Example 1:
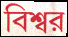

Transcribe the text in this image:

বিশ্বর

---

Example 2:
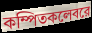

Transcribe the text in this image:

কম্পিতকলেবরে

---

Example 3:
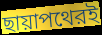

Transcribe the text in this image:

ছায়াপথেরই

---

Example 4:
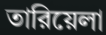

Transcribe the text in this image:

তারিয়েলা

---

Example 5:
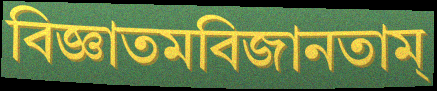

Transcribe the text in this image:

বিজ্ঞাতমবিজানতাম্